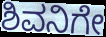
ಶಿವನಿಗೇ